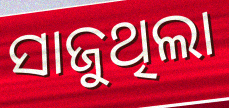
ସାଜୁଥିଲା